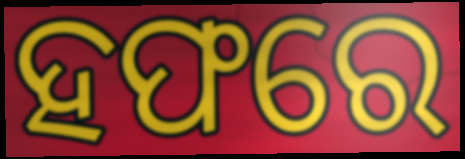
ହଫରେ